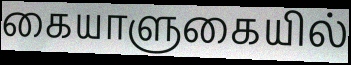
கையாளுகையில்